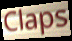
Claps